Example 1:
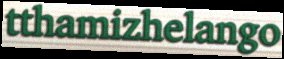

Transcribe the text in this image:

tthamizhelango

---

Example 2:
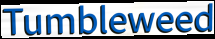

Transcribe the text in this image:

Tumbleweed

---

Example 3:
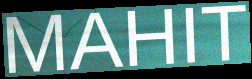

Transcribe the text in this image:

MAHIT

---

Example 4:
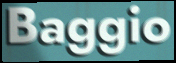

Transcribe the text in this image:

Baggio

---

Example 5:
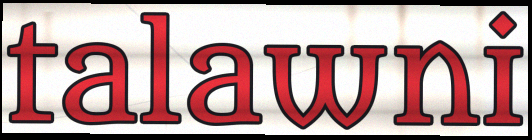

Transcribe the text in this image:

talawni